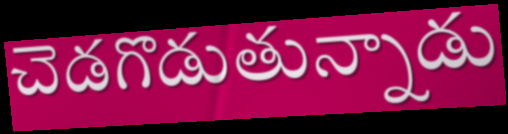
చెడగొడుతున్నాడు